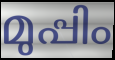
മുപ്പിം